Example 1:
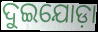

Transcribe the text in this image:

ଦୁଇଯୋଡ଼ା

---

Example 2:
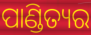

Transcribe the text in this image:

ପାଣ୍ଡିତ୍ୟର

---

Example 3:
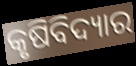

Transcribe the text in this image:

କୃଷିବିଦ୍ୟାର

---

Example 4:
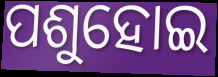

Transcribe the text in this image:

ପଶୁହୋଇ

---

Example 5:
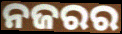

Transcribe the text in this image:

ନଜରର